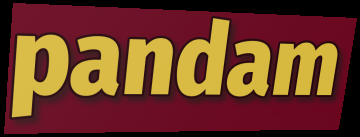
pandam